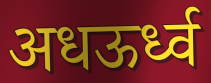
अधऊर्ध्व